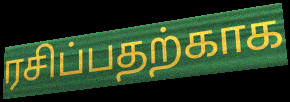
ரசிப்பதற்காக